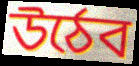
উঠেব